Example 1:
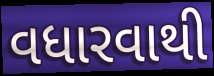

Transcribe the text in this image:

વધારવાથી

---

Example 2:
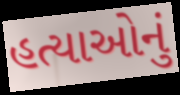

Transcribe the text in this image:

હત્યાઓનું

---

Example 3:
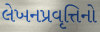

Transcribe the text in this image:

લેખનપ્રવૃત્તિનો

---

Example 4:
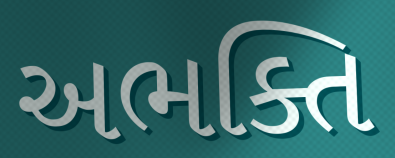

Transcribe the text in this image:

અભક્તિ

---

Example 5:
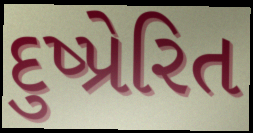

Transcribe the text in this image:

દુષ્પ્રેરિત